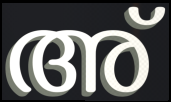
അ്